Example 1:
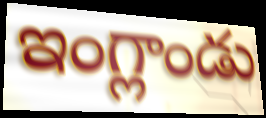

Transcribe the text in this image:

ఇంగ్లాండు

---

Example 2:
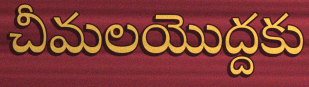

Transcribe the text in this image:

చీమలయొద్దకు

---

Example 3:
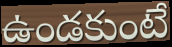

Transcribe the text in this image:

ఉండకుంటే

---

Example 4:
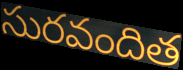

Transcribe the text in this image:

సురవందిత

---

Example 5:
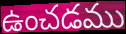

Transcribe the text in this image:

ఉంచడము